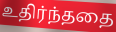
உதிர்ந்ததை